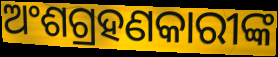
ଅଂଶଗ୍ରହଣକାରୀଙ୍କ